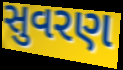
સુવરણ